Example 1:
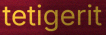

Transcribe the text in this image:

tetigerit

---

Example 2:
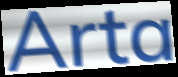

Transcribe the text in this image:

Arta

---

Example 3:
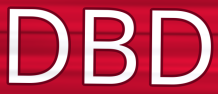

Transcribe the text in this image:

DBD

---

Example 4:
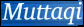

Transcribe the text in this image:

Muttaqi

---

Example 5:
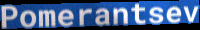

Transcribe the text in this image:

Pomerantsev